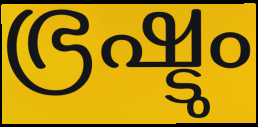
ഭ്രഷ്ടും